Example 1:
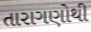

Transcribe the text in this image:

તારાગણોથી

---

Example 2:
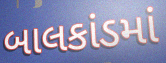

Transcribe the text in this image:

બાલકાંડમાં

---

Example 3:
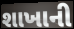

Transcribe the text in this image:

શાખાની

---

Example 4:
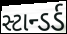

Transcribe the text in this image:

સ્ટાન્ડર્ડ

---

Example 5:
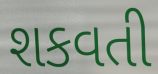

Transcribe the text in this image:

શકવતી